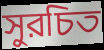
সুরচিত